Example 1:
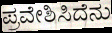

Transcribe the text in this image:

ಪ್ರವೇಶಿಸಿದೆನು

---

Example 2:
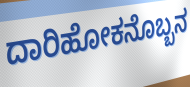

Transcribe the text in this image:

ದಾರಿಹೋಕನೊಬ್ಬನ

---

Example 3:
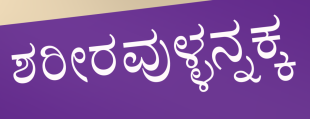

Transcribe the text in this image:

ಶರೀರವುಳ್ಳನ್ನಕ್ಕ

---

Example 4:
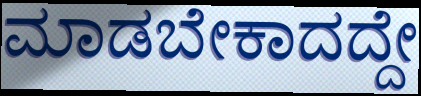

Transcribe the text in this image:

ಮಾಡಬೇಕಾದದ್ದೇ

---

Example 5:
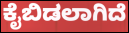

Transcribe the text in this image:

ಕೈಬಿಡಲಾಗಿದೆ